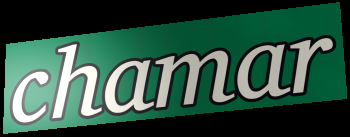
chamar